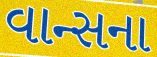
વાન્સના